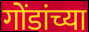
गोंडांच्या